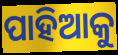
ପାହିଆକୁ